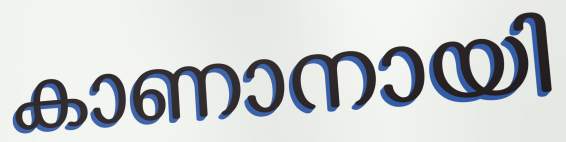
കാണാനായി